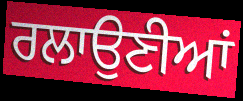
ਰਲਾਉਣੀਆਂ